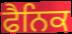
ਫੈਨਿਕ